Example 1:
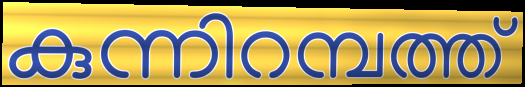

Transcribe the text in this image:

കുന്നിറമ്പത്ത്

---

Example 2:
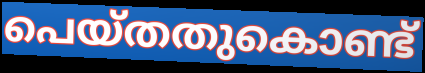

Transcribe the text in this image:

പെയ്തതുകൊണ്ട്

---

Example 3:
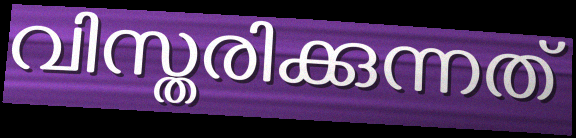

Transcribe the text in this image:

വിസ്തരിക്കുന്നത്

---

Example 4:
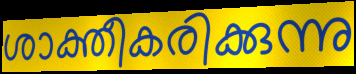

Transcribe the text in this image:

ശാക്തീകരിക്കുന്നു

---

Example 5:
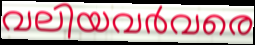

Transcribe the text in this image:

വലിയവർവരെ